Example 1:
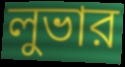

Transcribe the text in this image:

লুভার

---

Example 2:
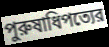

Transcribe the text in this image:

পুরুষাধিপত্যের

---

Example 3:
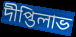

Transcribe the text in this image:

দীপ্তিলাভ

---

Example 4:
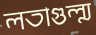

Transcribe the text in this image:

লতাগুল্ম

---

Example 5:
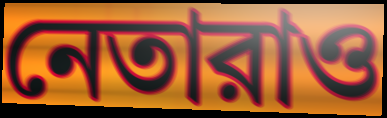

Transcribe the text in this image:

নেতারাও